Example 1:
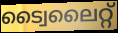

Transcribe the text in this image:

ട്വൈലൈറ്റ്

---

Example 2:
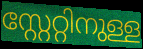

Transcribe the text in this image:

സ്റ്റേറ്റിനുള്ള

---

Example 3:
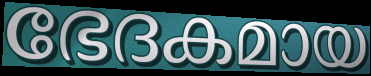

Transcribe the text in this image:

ഭേദകമായ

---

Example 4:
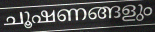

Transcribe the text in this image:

ചൂഷണങ്ങളും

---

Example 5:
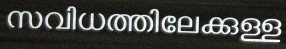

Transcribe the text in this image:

സവിധത്തിലേക്കുള്ള